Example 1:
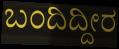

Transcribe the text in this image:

ಬಂದಿದ್ದೀರ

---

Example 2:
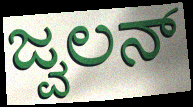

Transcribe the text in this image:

ಜ್ವಲನ್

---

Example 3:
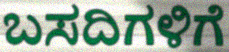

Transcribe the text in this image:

ಬಸದಿಗಳಿಗೆ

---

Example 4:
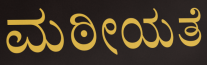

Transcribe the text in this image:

ಮಠೀಯತೆ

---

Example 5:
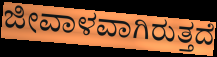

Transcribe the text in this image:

ಜೀವಾಳವಾಗಿರುತ್ತದೆ